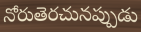
నోరుతెరచునప్పుడు